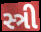
સ્ત્રી